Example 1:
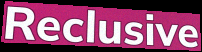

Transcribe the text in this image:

Reclusive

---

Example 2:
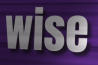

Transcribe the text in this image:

wise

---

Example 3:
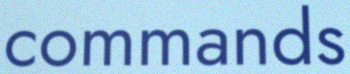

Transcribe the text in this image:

commands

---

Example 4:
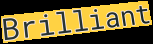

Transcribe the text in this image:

Brilliant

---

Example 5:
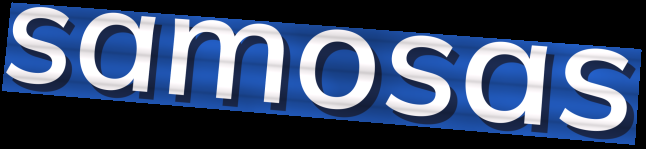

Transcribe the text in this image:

samosas